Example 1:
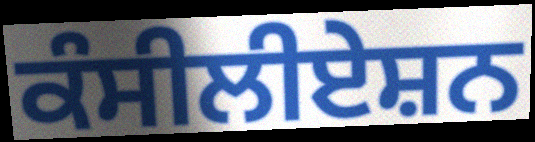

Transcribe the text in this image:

ਕੰਸੀਲੀਏਸ਼ਨ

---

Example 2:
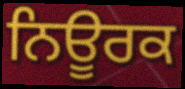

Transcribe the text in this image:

ਨਿਊਰਕ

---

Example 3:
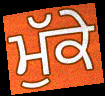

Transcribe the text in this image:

ਮੁੱਕੇ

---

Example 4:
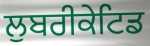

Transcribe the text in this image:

ਲੁਬਰੀਕੇਟਿਡ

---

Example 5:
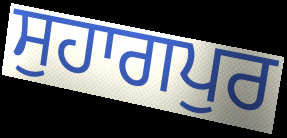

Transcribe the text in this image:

ਸੁਹਾਗਪੁਰ